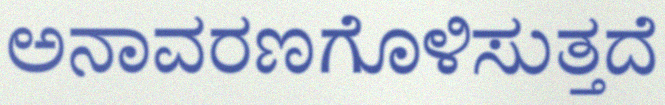
ಅನಾವರಣಗೊಳಿಸುತ್ತದೆ